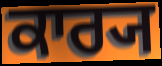
ਕਾਰ੍ਯ